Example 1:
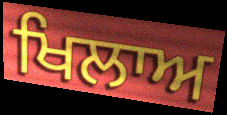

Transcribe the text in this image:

ਖਿਲਾਅ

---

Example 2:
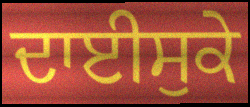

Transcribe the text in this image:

ਦਾਈਸੁਕੇ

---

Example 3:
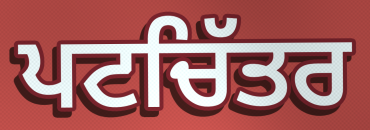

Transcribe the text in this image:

ਪਟਚਿੱਤਰ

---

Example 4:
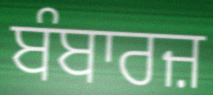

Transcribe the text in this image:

ਬੰਬਾਰਜ਼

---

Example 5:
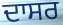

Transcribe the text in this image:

ਦਾਸਰ